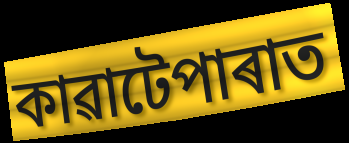
কাৱাটেপাৰাত